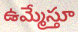
ఉమ్మేస్తూ